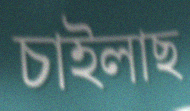
চাইলাছ